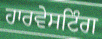
ਹਾਰਵੇਸਟਿੰਗ